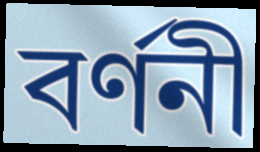
বৰ্ণনী